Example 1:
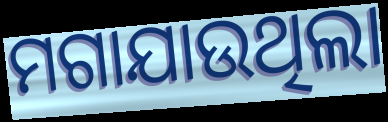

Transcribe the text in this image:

ମଗାଯାଉଥିଲା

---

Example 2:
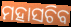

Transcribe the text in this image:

ମହାସଚିବ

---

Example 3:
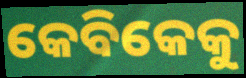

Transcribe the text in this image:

କେବିକେକୁ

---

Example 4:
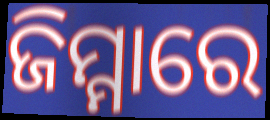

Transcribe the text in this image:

ଜିମ୍ମାରେ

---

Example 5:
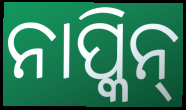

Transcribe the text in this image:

ନାପ୍କିନ୍